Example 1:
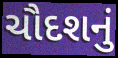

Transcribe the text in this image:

ચૌદશનું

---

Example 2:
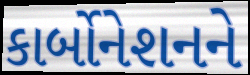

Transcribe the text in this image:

કાર્બોનેશનને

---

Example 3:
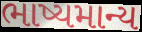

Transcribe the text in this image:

ભાષ્યમાન્ય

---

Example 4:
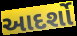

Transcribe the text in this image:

આદર્શો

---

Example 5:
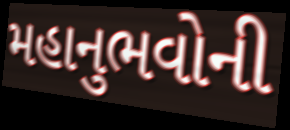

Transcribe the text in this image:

મહાનુભવોની